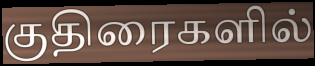
குதிரைகளில்